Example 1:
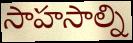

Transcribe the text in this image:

సాహసాల్ని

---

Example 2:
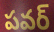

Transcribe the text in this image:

పవర్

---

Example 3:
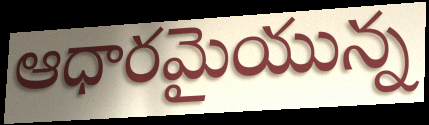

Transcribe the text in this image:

ఆధారమైయున్న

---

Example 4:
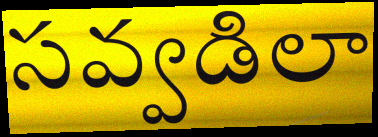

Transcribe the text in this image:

సవ్వడిలా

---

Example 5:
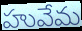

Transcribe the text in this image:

హువేమ